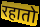
रहातो